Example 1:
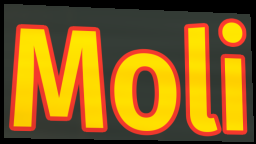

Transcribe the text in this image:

Moli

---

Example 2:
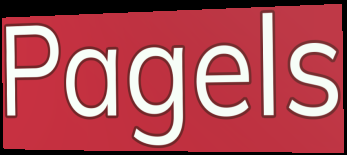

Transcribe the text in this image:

Pagels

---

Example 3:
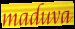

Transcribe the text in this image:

maduva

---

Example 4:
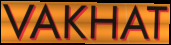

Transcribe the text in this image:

VAKHAT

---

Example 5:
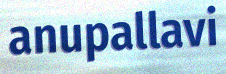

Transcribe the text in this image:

anupallavi